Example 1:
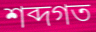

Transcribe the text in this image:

শব্দগত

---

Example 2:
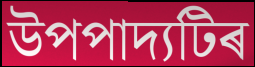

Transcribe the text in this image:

উপপাদ্যটিৰ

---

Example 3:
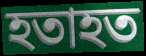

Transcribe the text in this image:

হতাহত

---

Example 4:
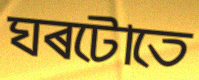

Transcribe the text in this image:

ঘৰটোতে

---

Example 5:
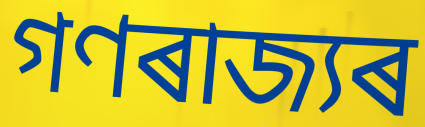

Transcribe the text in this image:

গণৰাজ্যৰ